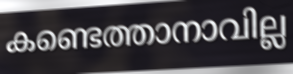
കണ്ടെത്താനാവില്ല